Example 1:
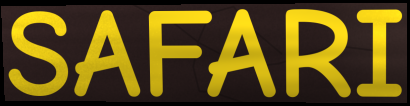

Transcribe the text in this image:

SAFARI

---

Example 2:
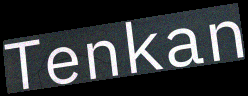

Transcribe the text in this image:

Tenkan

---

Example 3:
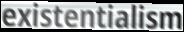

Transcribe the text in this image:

existentialism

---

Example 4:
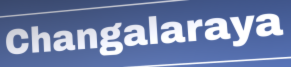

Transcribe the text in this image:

Changalaraya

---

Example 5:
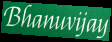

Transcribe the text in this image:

Bhanuvijay